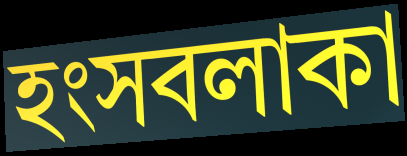
হংসবলাকা